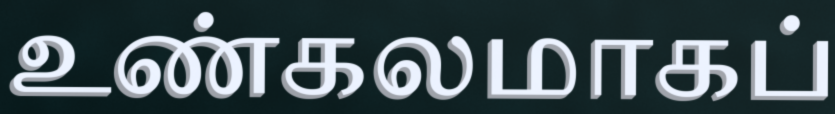
உண்கலமாகப்